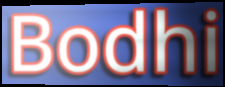
Bodhi